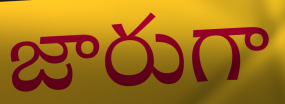
జారుగా